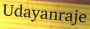
Udayanraje